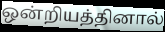
ஒன்றியத்தினால்